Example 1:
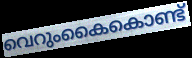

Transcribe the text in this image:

വെറുംകൈകൊണ്ട്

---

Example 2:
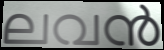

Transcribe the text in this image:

ലവൻ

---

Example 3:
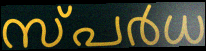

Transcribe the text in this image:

സ്പർധ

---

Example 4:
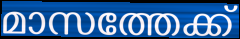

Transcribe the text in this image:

മാസത്തേക്ക്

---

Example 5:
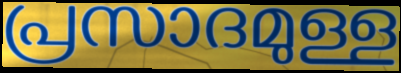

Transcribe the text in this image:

പ്രസാദമുള്ള